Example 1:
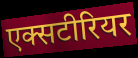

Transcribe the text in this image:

एक्‍सटीरियर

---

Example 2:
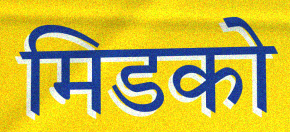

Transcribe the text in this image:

मिडको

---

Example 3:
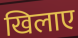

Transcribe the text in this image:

खिलाए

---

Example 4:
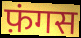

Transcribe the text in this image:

फ़ंगस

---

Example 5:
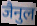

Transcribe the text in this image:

जैनुल